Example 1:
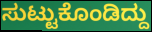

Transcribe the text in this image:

ಸುಟ್ಟುಕೊಂಡಿದ್ದು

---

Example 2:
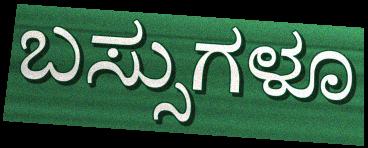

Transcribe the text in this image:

ಬಸ್ಸುಗಳೂ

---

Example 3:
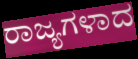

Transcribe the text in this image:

ರಾಜ್ಯಗಳಾದ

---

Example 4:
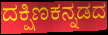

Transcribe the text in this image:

ದಕ್ಷಿಣಕನ್ನಡದ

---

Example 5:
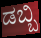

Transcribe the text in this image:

ಡಬ್ಬಿ